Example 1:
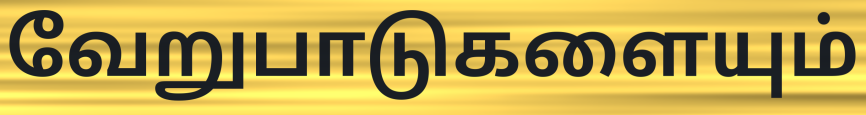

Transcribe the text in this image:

வேறுபாடுகளையும்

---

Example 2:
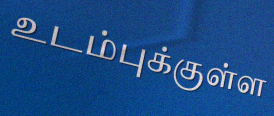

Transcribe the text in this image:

உடம்புக்குள்ள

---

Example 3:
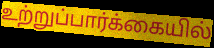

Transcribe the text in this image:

உற்றுப்பார்க்கையில்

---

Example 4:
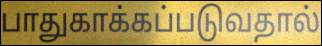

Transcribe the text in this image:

பாதுகாக்கப்படுவதால்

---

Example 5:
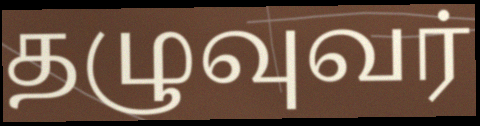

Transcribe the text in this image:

தழுவுவர்